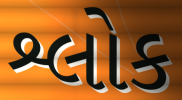
શ્લોક